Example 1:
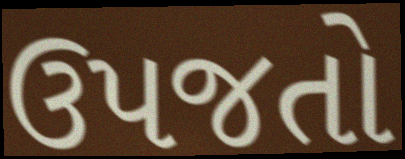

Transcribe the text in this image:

ઉપજતો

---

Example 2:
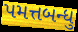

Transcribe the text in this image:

પમત્તબન્ધુ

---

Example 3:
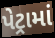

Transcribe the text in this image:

પેટ્રામાં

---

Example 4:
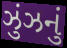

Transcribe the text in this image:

ઝુંઝનું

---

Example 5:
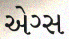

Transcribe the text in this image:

એગ્સ